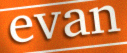
evan